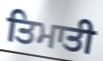
ਤਿਮਾਤੀ